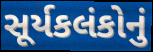
સૂર્યકલંકોનું